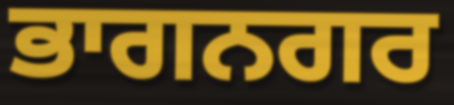
ਭਾਗਨਗਰ